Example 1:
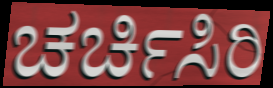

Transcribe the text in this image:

ಚರ್ಚಿಸಿರಿ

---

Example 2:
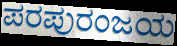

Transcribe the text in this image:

ಪರಪುರಂಜಯ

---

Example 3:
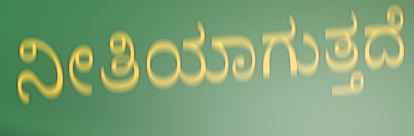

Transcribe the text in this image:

ನೀತಿಯಾಗುತ್ತದೆ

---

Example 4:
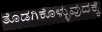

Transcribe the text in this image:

ತೊಡಗಿಕೊಳ್ಳುವುದಕ್ಕೆ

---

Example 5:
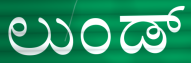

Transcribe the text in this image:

ಲುಂಡ್